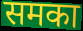
समका